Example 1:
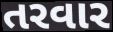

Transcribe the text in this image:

તરવાર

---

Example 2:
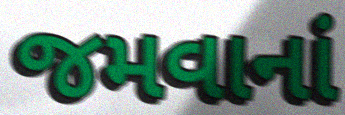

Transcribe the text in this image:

જમવાનાં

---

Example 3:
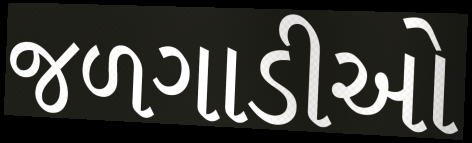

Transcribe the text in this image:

જળગાડીઓ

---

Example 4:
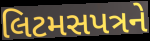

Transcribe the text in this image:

લિટમસપત્રને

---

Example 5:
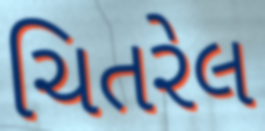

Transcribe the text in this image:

ચિતરેલ